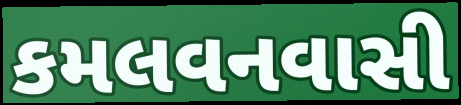
કમલવનવાસી